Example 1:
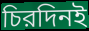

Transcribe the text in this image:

চিরদিনই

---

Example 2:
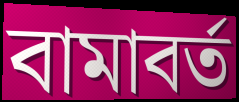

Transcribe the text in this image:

বামাবর্ত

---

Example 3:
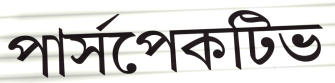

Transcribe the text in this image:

পার্সপেকটিভ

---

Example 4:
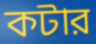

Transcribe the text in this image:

কটার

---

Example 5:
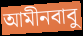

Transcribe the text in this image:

আমীনবাবু